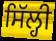
ਸਿੱਲ੍ਹੀ